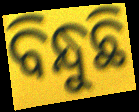
ବିନ୍ଧୁଛି